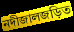
নদীজালজড়িত